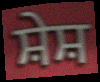
ਸ਼ੇਸ਼